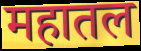
महातल